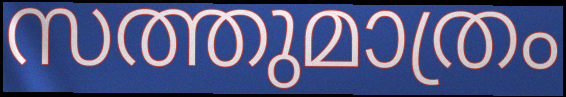
സത്തുമാത്രം